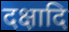
दक्षादि